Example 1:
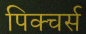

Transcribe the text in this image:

पिक्चर्स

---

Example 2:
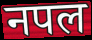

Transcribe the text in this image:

नपल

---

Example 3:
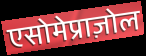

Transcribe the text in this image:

एसोमेप्राज़ोल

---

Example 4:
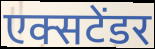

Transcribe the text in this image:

एक्सटेंडर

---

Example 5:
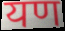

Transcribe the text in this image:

यण